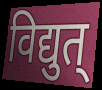
विद्युत्